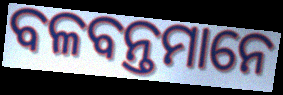
ବଳବନ୍ତମାନେ